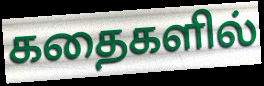
கதைகளில்